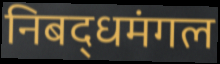
निबद्धमंगल